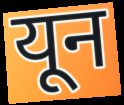
यून